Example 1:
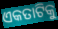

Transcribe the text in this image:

ଏକତାଟିକୁ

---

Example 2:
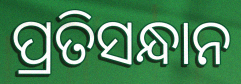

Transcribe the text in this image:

ପ୍ରତିସନ୍ଧାନ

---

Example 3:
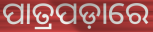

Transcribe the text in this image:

ପାତ୍ରପଡ଼ାରେ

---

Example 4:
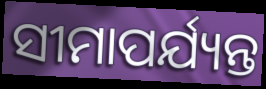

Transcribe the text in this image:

ସୀମାପର୍ଯ୍ୟନ୍ତ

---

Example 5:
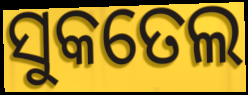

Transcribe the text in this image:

ସୁକତେଲ